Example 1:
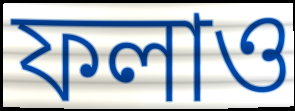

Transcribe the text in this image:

ফলাও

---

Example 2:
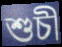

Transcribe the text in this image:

শুচী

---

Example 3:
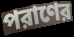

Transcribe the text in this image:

পরাণের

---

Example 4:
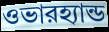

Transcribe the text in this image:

ওভারহ্যান্ড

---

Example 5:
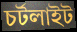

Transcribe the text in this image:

চর্টলাইট